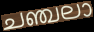
ചഞ്ചലാ